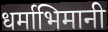
धर्माभिमानी